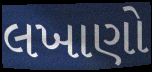
લખાણો